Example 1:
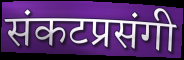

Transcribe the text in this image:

संकटप्रसंगी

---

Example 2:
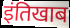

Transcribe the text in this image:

इंतिखाब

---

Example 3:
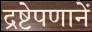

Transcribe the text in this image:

द्रष्टेपणानें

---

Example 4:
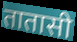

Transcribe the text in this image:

तातासी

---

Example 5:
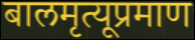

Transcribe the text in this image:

बालमृत्यूप्रमाण